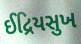
ઈદ્રિયસુખ